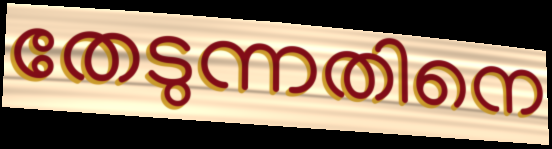
തേടുന്നതിനെ